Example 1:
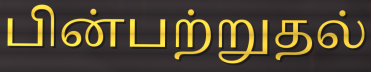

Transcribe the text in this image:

பின்பற்றுதல்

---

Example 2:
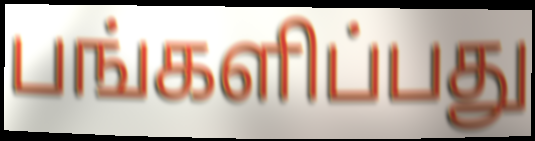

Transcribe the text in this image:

பங்களிப்பது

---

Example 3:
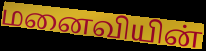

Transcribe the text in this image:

மனைவியின்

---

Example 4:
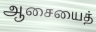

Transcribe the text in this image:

ஆசையைத்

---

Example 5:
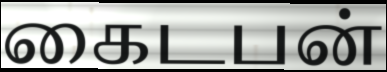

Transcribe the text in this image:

கைடபன்